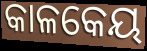
କାଳକେୟ